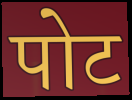
पोट